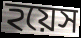
হয়েস